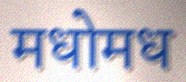
मधोमध